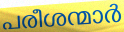
പരീശന്മാർ